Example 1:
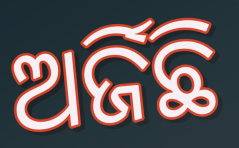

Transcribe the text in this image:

ଅର୍ଜିଛି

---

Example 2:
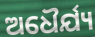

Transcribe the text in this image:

ଅଧୈର୍ଯ୍ୟ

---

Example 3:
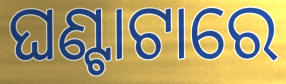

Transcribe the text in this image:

ଘଣ୍ଟାଟାରେ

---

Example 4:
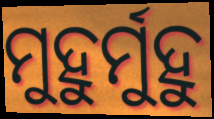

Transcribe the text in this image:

ମୁହୁର୍ମୁହୁ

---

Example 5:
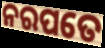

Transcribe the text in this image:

ନରପତେ